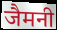
जैमनी